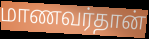
மாணவர்தான்